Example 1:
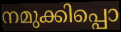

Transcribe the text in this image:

നമുക്കിപ്പൊ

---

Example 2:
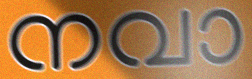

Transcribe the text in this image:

നവാ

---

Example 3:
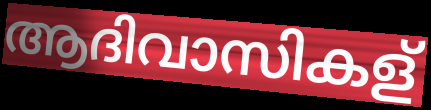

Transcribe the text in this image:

ആദിവാസികള്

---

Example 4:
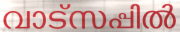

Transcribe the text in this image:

വാട്സപ്പിൽ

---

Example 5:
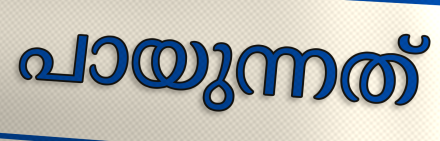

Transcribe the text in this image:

പായുന്നത്